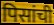
पिसांची